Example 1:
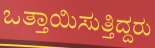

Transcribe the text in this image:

ಒತ್ತಾಯಿಸುತ್ತಿದ್ದರು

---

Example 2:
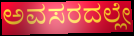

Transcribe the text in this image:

ಅವಸರದಲ್ಲೇ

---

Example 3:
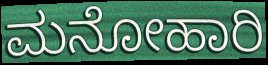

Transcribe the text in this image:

ಮನೋಹಾರಿ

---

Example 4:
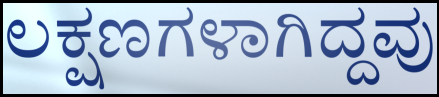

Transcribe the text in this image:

ಲಕ್ಷಣಗಳಾಗಿದ್ದವು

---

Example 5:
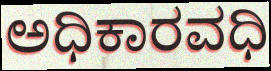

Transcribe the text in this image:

ಅಧಿಕಾರವಧಿ